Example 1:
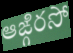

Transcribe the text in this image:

ఆఙ్గిరసో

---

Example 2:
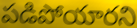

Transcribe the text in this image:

పడిపోయారని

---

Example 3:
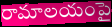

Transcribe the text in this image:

రామాలయంపై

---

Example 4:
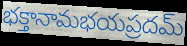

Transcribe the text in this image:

భక్తానామభయప్రదమ్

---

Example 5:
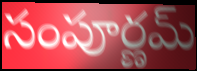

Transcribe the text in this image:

సంపూర్ణమ్